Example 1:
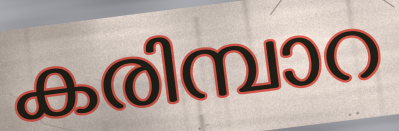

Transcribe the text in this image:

കരിമ്പാറ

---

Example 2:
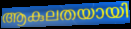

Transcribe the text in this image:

ആകുലതയായി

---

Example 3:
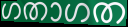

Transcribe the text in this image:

ഗതാഗത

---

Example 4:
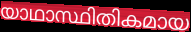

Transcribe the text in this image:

യാഥാസ്ഥിതികമായ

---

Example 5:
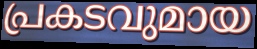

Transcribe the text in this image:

പ്രകടവുമായ